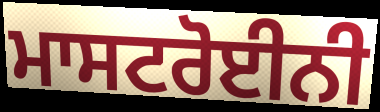
ਮਾਸਟਰੋਈਨੀ